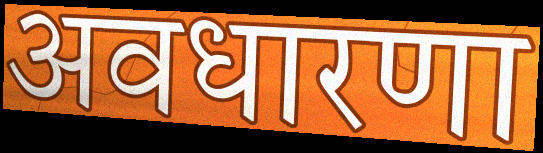
अवधारणा